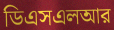
ডিএসএলআর